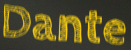
Dante